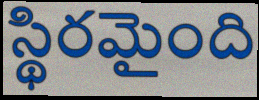
స్థిరమైంది